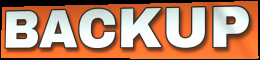
BACKUP